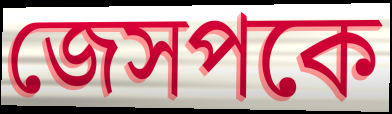
জেসপকে